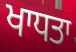
ਖਾਧਤਾ